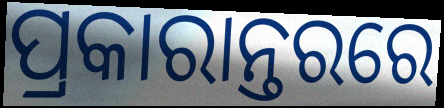
ପ୍ରକାରାନ୍ତରରେ